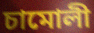
চামোলী